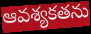
ఆవశ్యకతను